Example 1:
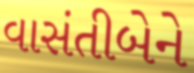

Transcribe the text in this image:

વાસંતીબેને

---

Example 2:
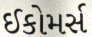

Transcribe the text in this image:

ઈકોમર્સ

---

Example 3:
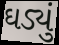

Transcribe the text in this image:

ઘડ્યું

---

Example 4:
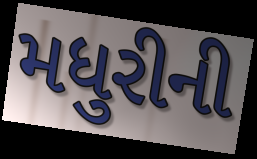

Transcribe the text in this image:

મધુરીની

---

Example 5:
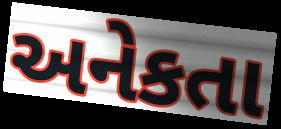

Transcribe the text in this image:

અનેકતા